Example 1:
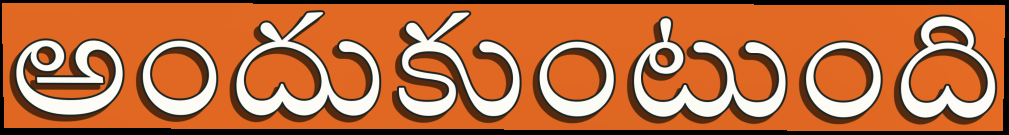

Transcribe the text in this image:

అందుకుంటుంది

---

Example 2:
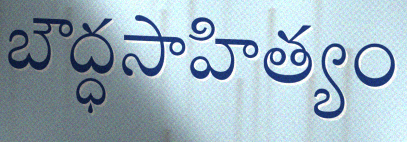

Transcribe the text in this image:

బౌద్ధసాహిత్యం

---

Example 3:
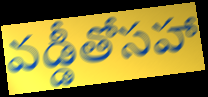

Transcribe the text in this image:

వడ్డీతోసహా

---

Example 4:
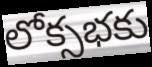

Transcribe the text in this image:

లోక్సభకు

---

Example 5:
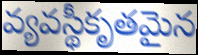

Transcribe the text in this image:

వ్యవస్థీకృతమైన